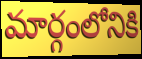
మార్గంలోనికి